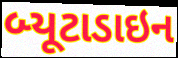
બ્યૂટાડાઇન